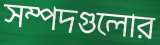
সম্পদগুলোর